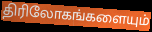
திரிலோகங்களையும்